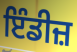
ਇੰਡੀਜ਼